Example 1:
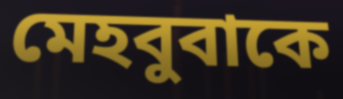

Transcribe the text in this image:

মেহবুবাকে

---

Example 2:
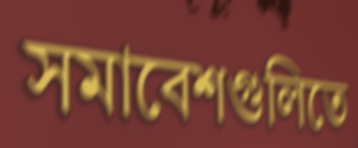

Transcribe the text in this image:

সমাবেশগুলিতে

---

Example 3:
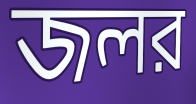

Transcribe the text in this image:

জলর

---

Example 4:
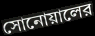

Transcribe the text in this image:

সোনোয়ালের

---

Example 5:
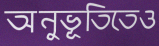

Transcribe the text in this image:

অনুভূতিতেও